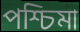
পশ্চিমা